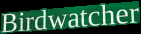
Birdwatcher